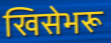
खिसेभरू